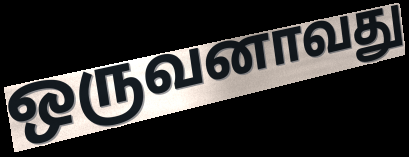
ஒருவனாவது